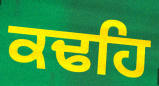
ਕਢਹਿ